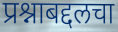
प्रश्नाबद्दलचा